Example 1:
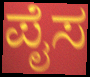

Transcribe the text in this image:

ಪೈಸ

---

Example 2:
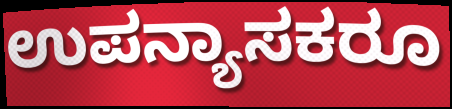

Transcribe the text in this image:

ಉಪನ್ಯಾಸಕರೂ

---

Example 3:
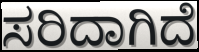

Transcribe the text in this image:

ಸರಿದಾಗಿದೆ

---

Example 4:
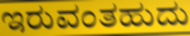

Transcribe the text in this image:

ಇರುವಂತಹುದು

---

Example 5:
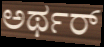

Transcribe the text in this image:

ಅರ್ಥರ್